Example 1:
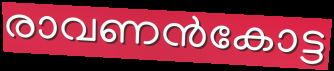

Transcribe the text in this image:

രാവണൻകോട്ട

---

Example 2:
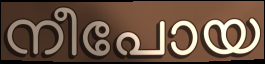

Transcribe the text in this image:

നീപോയ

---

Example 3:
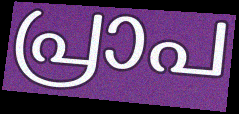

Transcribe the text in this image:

പ്രാപ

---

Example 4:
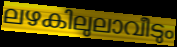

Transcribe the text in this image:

ലഴകിലുലാവീടും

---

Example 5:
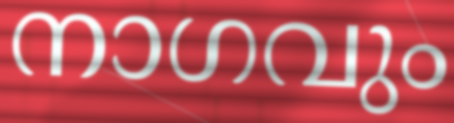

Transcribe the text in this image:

നാഗവും